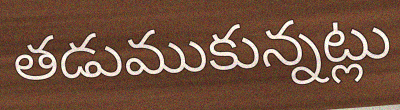
తడుముకున్నట్లు